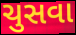
ચુસવા